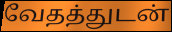
வேதத்துடன்